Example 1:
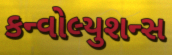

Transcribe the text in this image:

કન્વોલ્યુશન્સ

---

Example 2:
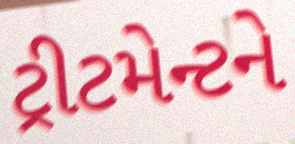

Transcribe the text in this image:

ટ્રીટમેન્ટને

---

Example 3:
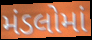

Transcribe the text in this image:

મંડલોમાં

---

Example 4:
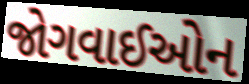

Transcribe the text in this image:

જોગવાઈઓન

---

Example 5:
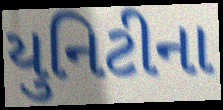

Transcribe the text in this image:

યુનિટીના